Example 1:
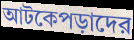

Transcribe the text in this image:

আটকেপড়াদের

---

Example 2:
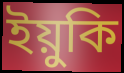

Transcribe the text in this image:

ইয়ুকি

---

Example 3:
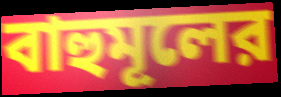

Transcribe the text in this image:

বাহুমূলের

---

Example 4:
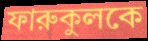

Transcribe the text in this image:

ফারুকুলকে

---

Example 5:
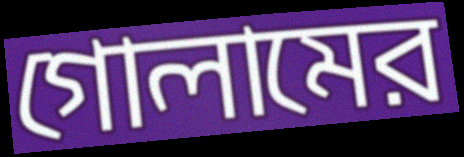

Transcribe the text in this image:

গোলামের